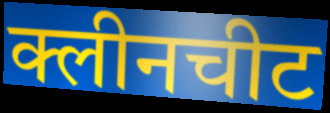
क्लीनचीट